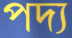
পদ্য